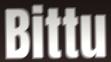
Bittu